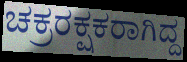
ಚಕ್ರರಕ್ಷಕರಾಗಿದ್ದ